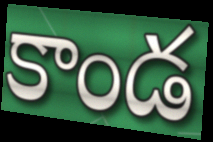
కాండ